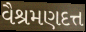
વૈશ્રમણદત્ત